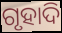
ଗୃହାଦି